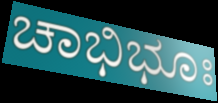
ಚಾಭಿಭೂಃ